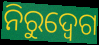
ନିରୁଦ୍ବେଗ